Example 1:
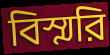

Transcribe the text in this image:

বিস্মরি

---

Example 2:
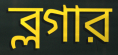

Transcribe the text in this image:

ব্লগার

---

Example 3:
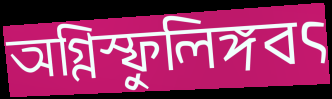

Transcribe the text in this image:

অগ্নিস্ফুলিঙ্গবৎ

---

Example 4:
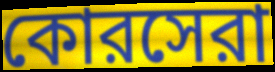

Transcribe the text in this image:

কোরসেরা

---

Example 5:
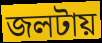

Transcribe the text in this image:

জলটায়